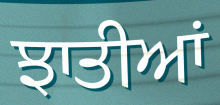
ਝਾਤੀਆਂ